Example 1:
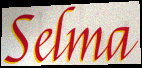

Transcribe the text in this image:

Selma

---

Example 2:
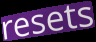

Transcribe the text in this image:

resets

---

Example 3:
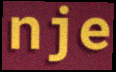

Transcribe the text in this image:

nje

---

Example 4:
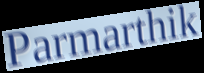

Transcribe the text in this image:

Parmarthik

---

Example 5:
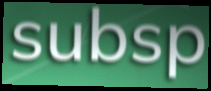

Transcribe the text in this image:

subsp